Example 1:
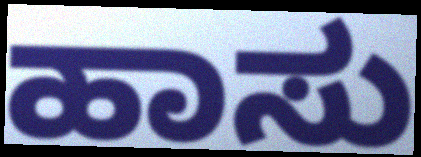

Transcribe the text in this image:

ಹಾಸು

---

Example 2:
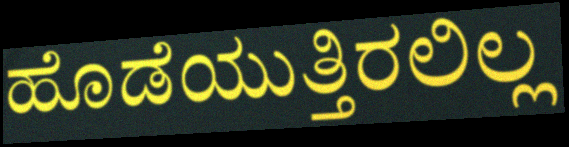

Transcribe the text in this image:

ಹೊಡೆಯುತ್ತಿರಲಿಲ್ಲ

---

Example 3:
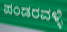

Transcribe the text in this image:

ಪಂಡರವಳ್ಳಿ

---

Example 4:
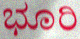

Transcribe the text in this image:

ಭೂರಿ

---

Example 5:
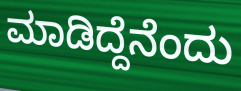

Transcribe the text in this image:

ಮಾಡಿದ್ದೆನೆಂದು